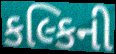
કલ્કિની